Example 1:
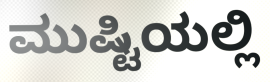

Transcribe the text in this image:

ಮುಷ್ಟಿಯಲ್ಲಿ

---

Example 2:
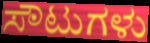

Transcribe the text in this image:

ಸೌಟುಗಳು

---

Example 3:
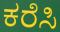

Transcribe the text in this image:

ಕರೆಸಿ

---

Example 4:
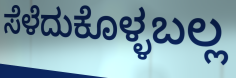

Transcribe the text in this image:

ಸೆಳೆದುಕೊಳ್ಳಬಲ್ಲ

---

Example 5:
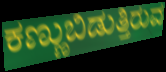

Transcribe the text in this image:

ಕಣ್ಣುಬಿಡುತ್ತಿರುವ